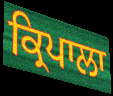
ਕ੍ਰਿਪਾਲਾ